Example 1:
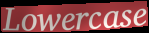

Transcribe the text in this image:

Lowercase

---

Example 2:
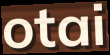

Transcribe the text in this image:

otai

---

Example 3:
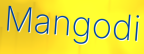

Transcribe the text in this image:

Mangodi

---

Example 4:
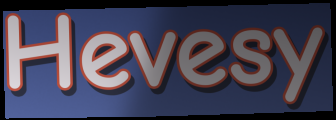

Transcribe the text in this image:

Hevesy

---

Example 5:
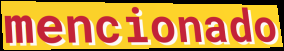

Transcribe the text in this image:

mencionado